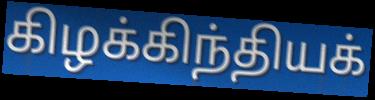
கிழக்கிந்தியக்